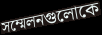
সম্মেলনগুলোকে